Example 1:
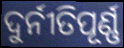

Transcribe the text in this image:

ଦୁର୍ନୀତିପୂର୍ଣ୍ଣ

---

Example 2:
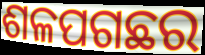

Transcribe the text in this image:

ଶଳପଗଛର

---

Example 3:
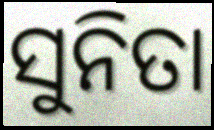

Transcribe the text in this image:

ସୁନିତା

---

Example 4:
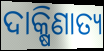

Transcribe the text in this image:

ଦାକ୍ଷିଣାତ୍ୟ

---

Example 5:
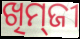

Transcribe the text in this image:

ଖିମ୍‌ଜୀ